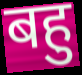
बहु